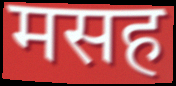
मसह